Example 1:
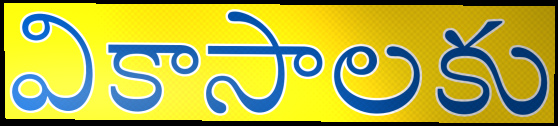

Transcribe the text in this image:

వికాసాలకు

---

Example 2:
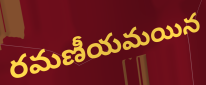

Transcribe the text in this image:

రమణీయమయిన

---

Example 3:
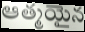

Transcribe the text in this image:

ఆత్మయైన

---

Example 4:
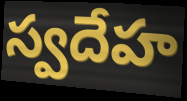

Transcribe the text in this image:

స్వదేహ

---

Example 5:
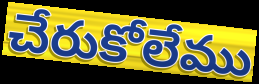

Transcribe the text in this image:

చేరుకోలేము